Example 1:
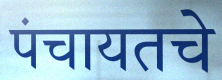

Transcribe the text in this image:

पंचायतचे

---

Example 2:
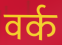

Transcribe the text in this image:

वर्क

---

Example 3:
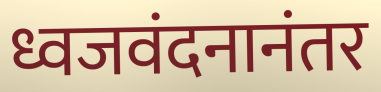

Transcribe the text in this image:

ध्वजवंदनानंतर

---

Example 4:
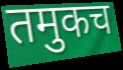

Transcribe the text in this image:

तमुकच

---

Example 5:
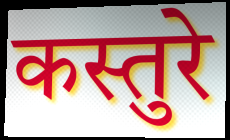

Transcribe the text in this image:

कस्तुरे